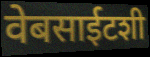
वेबसाईटशी